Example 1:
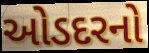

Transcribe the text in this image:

ઓડદરનો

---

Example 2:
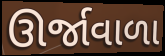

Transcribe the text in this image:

ઊર્જાવાળા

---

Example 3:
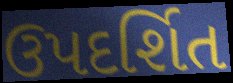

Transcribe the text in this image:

ઉપદર્શિત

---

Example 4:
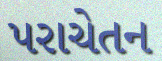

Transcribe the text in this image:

પરાચેતન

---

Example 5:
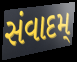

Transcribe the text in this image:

સંવાદમ્